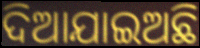
ଦିଆଯାଇଅଛି